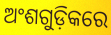
ଅଂଶଗୁଡ଼ିକରେ